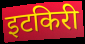
इटकिरी